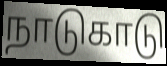
நாடுகாடு